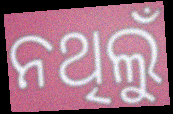
ନଥିଲୁଁ